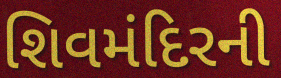
શિવમંદિરની